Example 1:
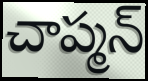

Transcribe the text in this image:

చాప్మన్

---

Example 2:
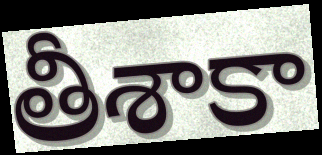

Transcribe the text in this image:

తీశాకా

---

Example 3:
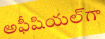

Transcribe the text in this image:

అఫీషియల్‌గా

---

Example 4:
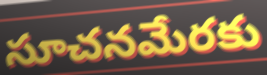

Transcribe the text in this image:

సూచనమేరకు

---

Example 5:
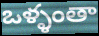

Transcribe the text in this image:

ఒళ్ళంతా